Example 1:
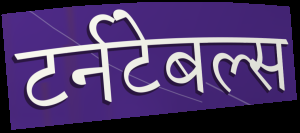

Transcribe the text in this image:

टर्नटेबल्स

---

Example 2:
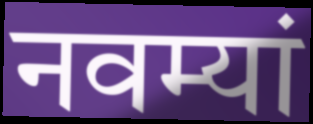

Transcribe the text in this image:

नवम्यां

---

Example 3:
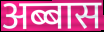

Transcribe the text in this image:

अब्बास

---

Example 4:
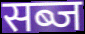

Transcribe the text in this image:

सब्ज़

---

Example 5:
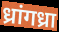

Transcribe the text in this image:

ध्रांगध्रा